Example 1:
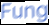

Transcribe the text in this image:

Fung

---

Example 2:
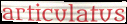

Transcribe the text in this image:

articulatus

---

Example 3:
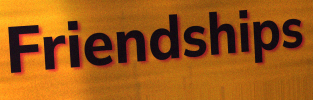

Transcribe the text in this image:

Friendships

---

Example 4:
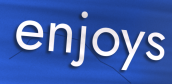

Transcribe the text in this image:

enjoys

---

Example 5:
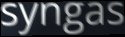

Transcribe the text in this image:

syngas